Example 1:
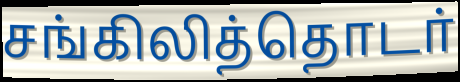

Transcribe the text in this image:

சங்கிலித்தொடர்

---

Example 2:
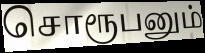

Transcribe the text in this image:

சொரூபனும்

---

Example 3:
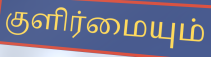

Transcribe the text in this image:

குளிர்மையும்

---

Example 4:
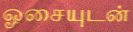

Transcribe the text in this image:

ஓசையுடன்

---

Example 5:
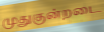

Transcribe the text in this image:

முதுகுன்றடை